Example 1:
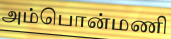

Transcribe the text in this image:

அம்பொன்மணி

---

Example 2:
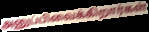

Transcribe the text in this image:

அனுப்பிவைக்கிறார்கள்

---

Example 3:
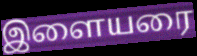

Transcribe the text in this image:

இளையரை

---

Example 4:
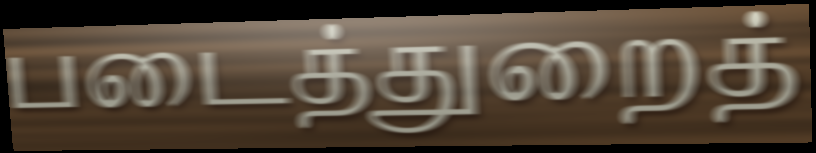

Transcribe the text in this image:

படைத்துறைத்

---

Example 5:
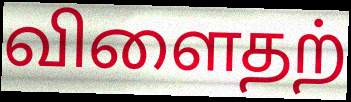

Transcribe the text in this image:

விளைதற்